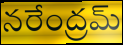
నరేంద్రమ్